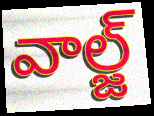
వాల్జ్